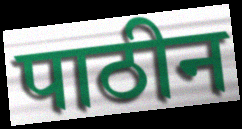
पाठीन